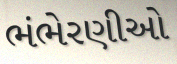
ભંભેરણીઓ